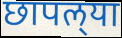
छापल्या